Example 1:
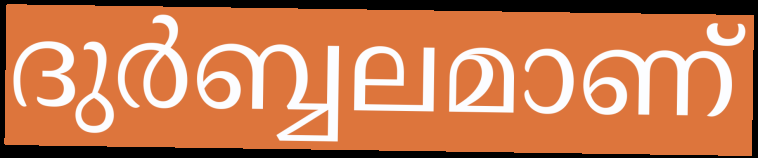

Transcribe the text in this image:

ദുർബ്ബലമാണ്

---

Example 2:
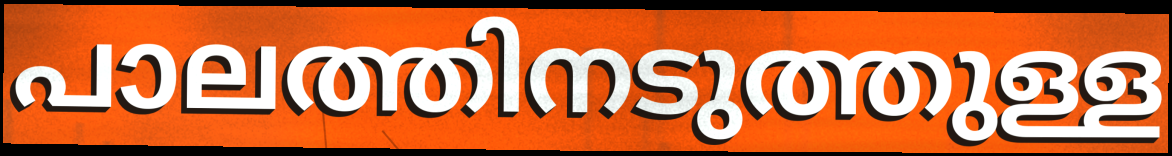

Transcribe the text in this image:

പാലത്തിനടുത്തുള്ള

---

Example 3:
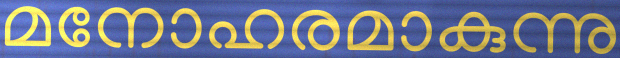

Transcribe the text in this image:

മനോഹരമാകുന്നു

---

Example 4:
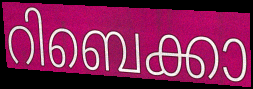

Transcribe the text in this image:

റിബെക്കാ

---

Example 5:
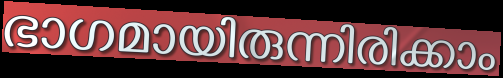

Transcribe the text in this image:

ഭാഗമായിരുന്നിരിക്കാം